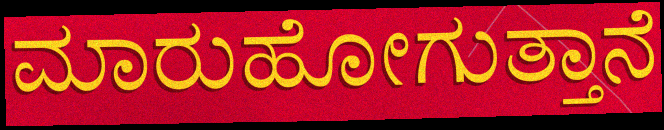
ಮಾರುಹೋಗುತ್ತಾನೆ